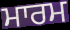
ਮਾਰਮ